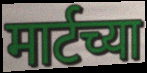
मार्टच्या